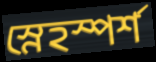
স্নেহস্পর্শ